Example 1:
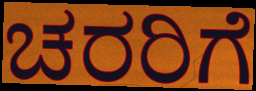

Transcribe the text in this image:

ಚರರಿಗೆ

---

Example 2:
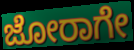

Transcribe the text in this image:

ಜೋರಾಗೇ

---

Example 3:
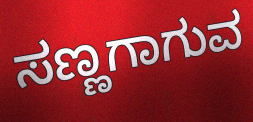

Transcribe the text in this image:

ಸಣ್ಣಗಾಗುವ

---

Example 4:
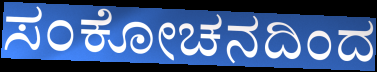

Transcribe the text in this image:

ಸಂಕೋಚನದಿಂದ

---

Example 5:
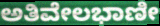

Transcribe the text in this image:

ಅತಿವೇಲಭಾಣೀ